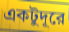
একটুদূরে